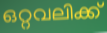
ഒറ്റവലിക്ക്